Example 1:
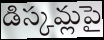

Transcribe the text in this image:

డిస్కమ్లపై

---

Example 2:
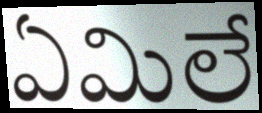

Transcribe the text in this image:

ఏమిలే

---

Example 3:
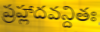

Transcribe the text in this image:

ప్రహ్లాదవన్దితః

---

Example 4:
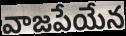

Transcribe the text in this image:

వాజపేయేన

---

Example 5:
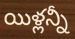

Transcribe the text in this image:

యిళ్లన్నీ